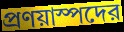
প্রণয়াস্পদের